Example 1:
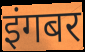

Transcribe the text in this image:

इंगबर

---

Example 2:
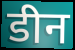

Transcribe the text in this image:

डीन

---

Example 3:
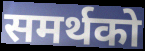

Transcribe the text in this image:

समर्थको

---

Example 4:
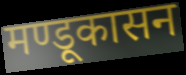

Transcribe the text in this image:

मण्डूकासन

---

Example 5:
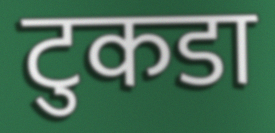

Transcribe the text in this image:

टुकडा